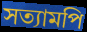
সত্যামপি